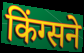
किंग्सने